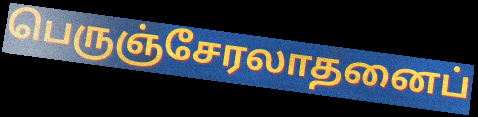
பெருஞ்சேரலாதனைப்